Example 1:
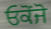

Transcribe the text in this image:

ਓਕੋਂਜੋ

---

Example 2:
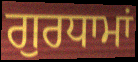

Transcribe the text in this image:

ਗੁਰਧਾਮਾਂ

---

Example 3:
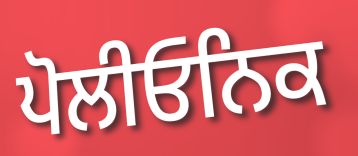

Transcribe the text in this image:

ਪੋਲੀਓਨਿਕ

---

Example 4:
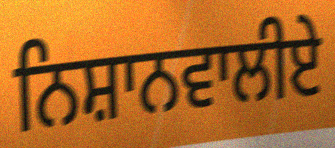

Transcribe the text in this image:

ਨਿਸ਼ਾਨਵਾਲੀਏ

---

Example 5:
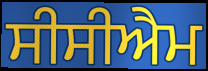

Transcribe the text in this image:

ਸੀਸੀਐਮ